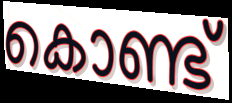
കൊണ്ട്